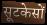
सूटकेसों